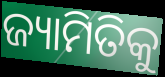
ଜ୍ୟାମିତିକୁ